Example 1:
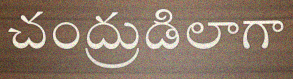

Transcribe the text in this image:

చంద్రుడిలాగా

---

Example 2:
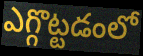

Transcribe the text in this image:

ఎగ్గొట్టడంలో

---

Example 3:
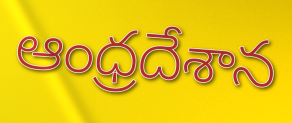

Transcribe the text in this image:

ఆంధ్రదేశాన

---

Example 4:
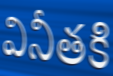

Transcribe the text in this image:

వినీతకి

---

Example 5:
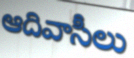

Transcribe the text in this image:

ఆదివాసీలు